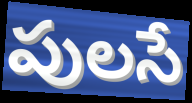
పులసే